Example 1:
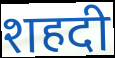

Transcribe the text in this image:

शहदी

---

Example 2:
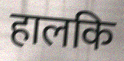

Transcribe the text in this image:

हालकि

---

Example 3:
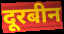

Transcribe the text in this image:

दूरबीन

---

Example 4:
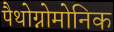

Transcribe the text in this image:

पैथोग्नोमोनिक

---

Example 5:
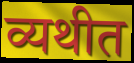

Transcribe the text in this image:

व्यथीत